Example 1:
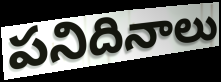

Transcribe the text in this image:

పనిదినాలు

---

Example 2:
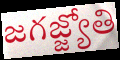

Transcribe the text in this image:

జగజ్జ్యోతి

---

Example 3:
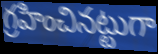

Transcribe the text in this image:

గ్రహించినట్టుగా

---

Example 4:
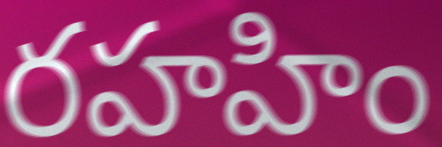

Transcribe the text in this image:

రహహిం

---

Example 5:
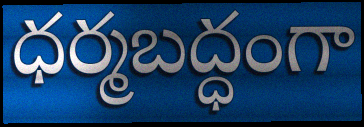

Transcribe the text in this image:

ధర్మబద్ధంగా